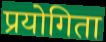
प्रयोगिता